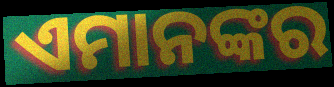
ଏମାନଙ୍କର